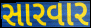
સારવાર